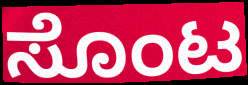
ಸೊಂಟ